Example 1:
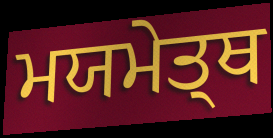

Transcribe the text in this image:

ਮਯਮੇਤ੍ਥ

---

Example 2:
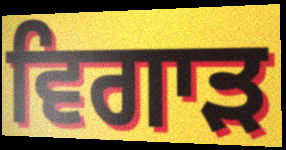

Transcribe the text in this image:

ਵਿਗਾਡ਼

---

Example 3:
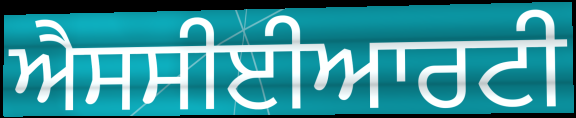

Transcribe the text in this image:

ਐਸਸੀਈਆਰਟੀ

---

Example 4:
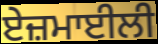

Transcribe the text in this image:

ਏਜ਼ਮਾਈਲੀ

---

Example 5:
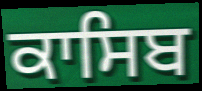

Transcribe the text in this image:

ਕਾਸਿਬ